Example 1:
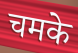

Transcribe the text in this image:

चमके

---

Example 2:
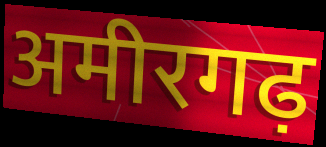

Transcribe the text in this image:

अमीरगढ़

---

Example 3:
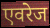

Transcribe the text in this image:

एवरेज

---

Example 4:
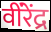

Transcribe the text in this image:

वींरेंद्र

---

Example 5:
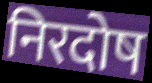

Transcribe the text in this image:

निरदोष